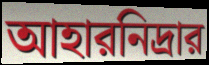
আহারনিদ্রার